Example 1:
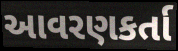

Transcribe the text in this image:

આવરણકર્તા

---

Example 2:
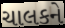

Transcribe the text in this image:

ચાલકને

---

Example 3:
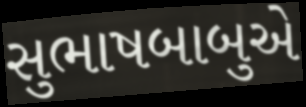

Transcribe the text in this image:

સુભાષબાબુએ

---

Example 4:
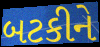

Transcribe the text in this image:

બટકીને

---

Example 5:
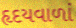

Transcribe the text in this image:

હૃદયવાળાં